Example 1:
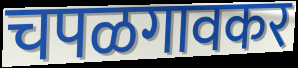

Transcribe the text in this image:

चपळगावकर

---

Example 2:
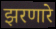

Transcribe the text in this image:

झरणारे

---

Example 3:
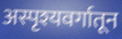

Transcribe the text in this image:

अस्पृश्यवर्गातून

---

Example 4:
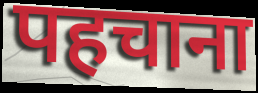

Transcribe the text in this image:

पहचाना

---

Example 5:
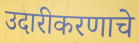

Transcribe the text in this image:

उदारीकरणाचे